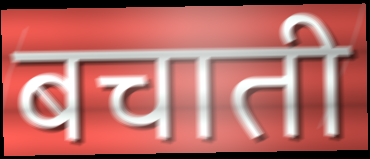
बचाती